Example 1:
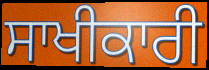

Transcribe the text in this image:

ਸਾਖੀਕਾਰੀ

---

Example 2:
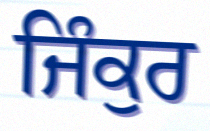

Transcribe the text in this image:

ਜਿੰਕੁਰ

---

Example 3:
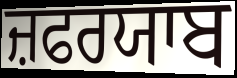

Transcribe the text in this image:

ਜ਼ਫਰਯਾਬ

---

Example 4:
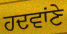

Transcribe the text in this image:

ਹਦਵਾਂਣੇ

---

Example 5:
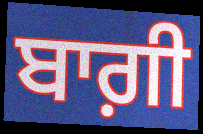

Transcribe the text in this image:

ਬਾਗ਼ੀ